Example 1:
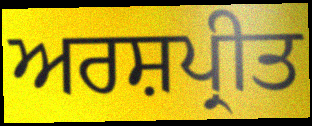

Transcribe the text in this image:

ਅਰਸ਼ਪ੍ਰੀਤ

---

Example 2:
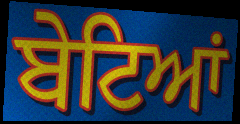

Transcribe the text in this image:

ਬੇਟਿਆਂ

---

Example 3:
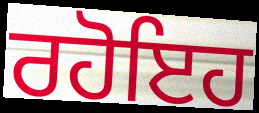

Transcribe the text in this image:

ਰਹੋਇਹ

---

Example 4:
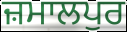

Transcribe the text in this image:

ਜ਼ਮਾਲਪੁਰ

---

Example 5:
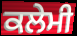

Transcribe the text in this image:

ਕਲੇਮੀ